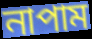
নাপাম